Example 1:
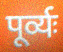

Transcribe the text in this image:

पूर्व्यः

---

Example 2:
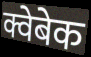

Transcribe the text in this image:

क्वेबेक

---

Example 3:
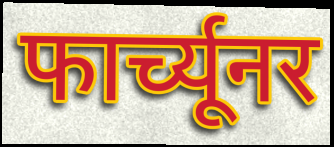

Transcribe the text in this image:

फार्च्यूनर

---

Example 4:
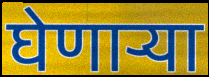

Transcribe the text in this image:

घेणाऱ्या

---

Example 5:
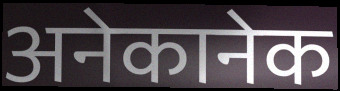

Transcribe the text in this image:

अनेकानेक